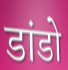
डांडो